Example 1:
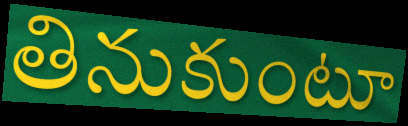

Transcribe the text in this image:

తినుకుంటూ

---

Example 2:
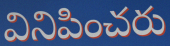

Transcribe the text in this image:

వినిపించరు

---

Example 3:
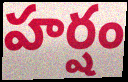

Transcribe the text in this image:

హర్షం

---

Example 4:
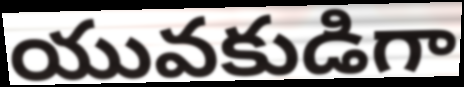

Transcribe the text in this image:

యువకుడిగా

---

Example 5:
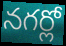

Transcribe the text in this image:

నగర్లో